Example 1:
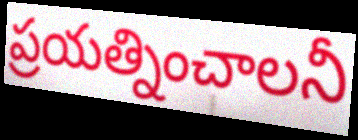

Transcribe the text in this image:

ప్రయత్నించాలనీ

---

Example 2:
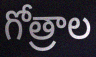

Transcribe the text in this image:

గోత్రాల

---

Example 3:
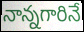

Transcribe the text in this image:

నాన్నగారినే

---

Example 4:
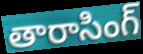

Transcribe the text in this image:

తారాసింగ్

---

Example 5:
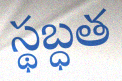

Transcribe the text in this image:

స్థబ్ధత